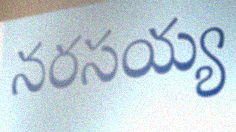
నరసయ్య